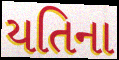
યતિના